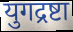
युगद्रष्टा